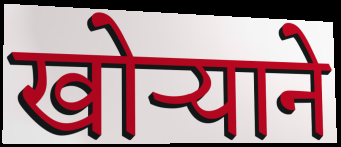
खोऱ्याने